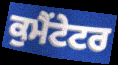
ਕੁਮੈਂਟੇਟਰ